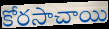
కోరసాచాయి